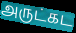
அருட்கட